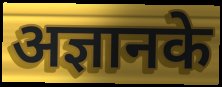
अज्ञानके